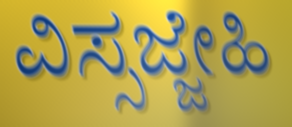
ವಿಸ್ಸಜ್ಜೇಹಿ